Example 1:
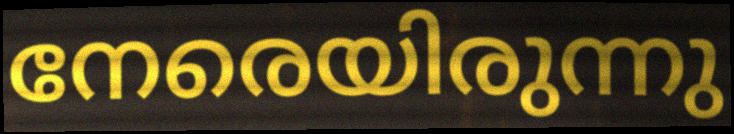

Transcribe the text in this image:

നേരെയിരുന്നു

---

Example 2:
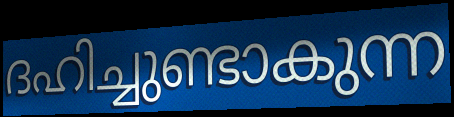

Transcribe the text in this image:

ദഹിച്ചുണ്ടാകുന്ന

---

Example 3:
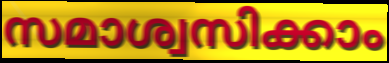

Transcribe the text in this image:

സമാശ്വസിക്കാം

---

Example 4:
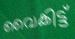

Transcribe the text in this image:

വൈകിട്ട്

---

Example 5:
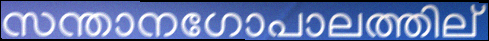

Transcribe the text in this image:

സന്താനഗോപാലത്തില്